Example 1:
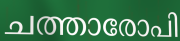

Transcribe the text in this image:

ചത്താരോപി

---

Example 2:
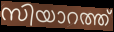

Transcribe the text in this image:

സിയാറത്ത്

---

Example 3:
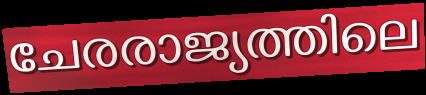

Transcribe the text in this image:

ചേരരാജ്യത്തിലെ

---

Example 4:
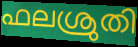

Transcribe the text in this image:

ഫലശ്രുതി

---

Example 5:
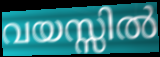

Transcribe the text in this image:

വയസ്സിൽ